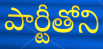
పార్టీతోని